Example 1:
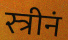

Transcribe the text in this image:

स्त्रीनं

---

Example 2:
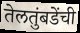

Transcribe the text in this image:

तेलतुंबडेंची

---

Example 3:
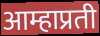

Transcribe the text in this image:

आम्हाप्रती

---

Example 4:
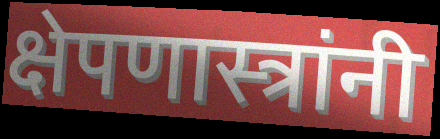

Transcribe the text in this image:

क्षेपणास्त्रांनी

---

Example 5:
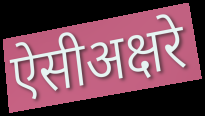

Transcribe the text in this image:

ऐसीअक्षरे